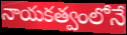
నాయకత్వంలోనే